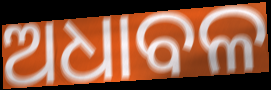
ଅଧାବଳ